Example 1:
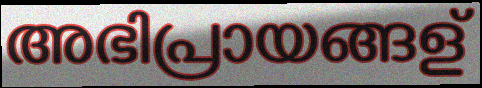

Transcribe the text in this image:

അഭിപ്രായങ്ങള്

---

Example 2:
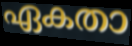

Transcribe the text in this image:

ഏകതാ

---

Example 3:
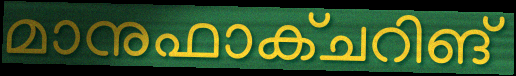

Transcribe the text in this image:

മാനുഫാക്ചറിങ്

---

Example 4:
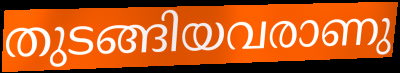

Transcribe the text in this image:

തുടങ്ങിയവരാണു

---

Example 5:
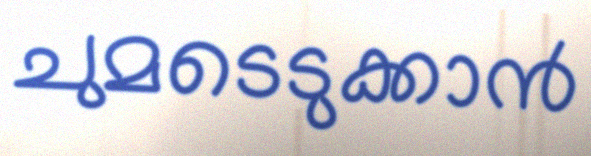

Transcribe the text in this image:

ചുമടെടുക്കാൻ